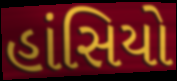
હાંસિયો